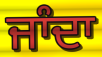
ਜਾੰਦਾ